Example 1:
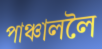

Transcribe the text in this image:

পাঞ্চাললৈ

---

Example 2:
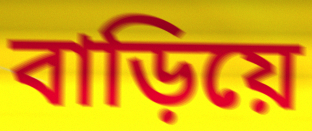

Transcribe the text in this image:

বাড়িয়ে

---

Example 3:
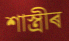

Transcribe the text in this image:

শাস্ত্ৰীৰ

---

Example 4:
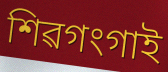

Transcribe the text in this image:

শিৱগংগাই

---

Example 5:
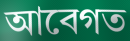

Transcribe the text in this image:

আবেগত